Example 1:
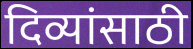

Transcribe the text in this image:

दिव्यांसाठी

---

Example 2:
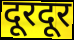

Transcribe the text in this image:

दूरदूर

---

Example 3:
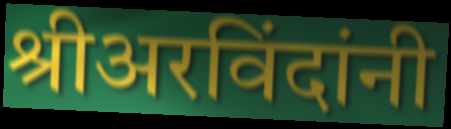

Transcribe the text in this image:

श्रीअरविंदांनी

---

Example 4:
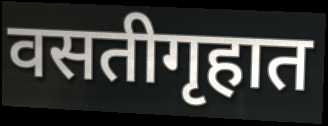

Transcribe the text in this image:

वसतीगृहात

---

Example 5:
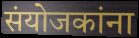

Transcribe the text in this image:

संयोजकांना